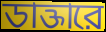
ডাক্তারে